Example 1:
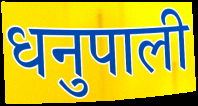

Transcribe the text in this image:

धनुपाली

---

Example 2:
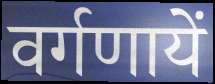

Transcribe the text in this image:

वर्गणायें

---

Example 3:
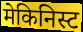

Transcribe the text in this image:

मेकिनिस्ट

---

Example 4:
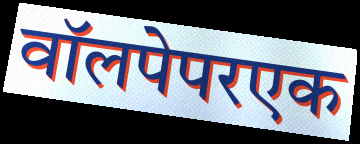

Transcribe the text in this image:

वॉलपेपरएक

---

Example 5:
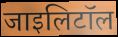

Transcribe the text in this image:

जाइलिटॉल